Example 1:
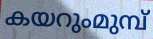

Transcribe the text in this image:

കയറുംമുമ്പ്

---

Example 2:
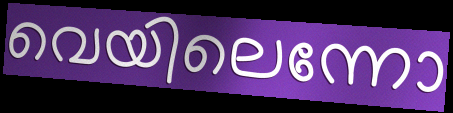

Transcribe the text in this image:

വെയിലെന്നോ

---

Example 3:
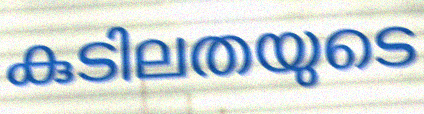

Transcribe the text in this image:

കുടിലതയുടെ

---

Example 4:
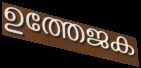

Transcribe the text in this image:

ഉത്തേജക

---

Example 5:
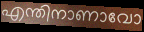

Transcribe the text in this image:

എന്തിനാണാവോ